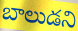
బాలుడని